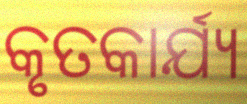
କୃତକାର୍ଯ୍ୟ